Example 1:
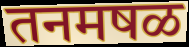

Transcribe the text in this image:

तनमषळ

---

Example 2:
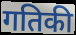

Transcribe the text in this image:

गतिकी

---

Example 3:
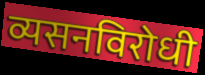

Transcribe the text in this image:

व्यसनविरोधी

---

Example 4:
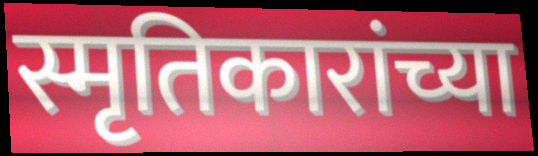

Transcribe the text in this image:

स्मृतिकारांच्या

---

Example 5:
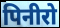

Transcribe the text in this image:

पिनीरो